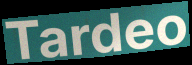
Tardeo